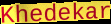
Khedekar